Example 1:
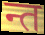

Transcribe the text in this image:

न्त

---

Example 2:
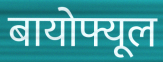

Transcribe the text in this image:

बायोफ्यूल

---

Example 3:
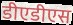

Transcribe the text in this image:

डीएडीएस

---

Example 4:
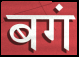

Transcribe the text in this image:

बगं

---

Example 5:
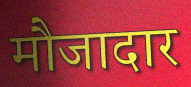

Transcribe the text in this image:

मौजादार